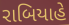
રાબિયાહે